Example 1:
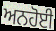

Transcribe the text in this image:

ਅਨਹੋਈ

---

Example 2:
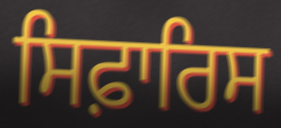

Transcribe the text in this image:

ਸਿਫ਼ਾਰਿਸ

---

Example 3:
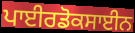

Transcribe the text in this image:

ਪਾਈਰਡੋਕਸਾਈਨ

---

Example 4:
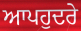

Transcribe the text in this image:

ਆਪਹੁਦਰੇ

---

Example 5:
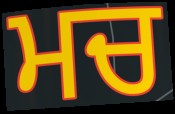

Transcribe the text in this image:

ਮਚ